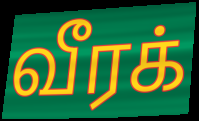
வீரக்